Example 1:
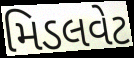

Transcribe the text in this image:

મિડલવેટ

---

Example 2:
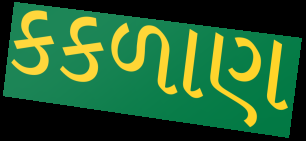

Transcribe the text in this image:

કકળાણ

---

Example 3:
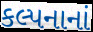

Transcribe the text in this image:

કલ્પનાનાં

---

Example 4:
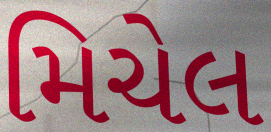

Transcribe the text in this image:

મિચેલ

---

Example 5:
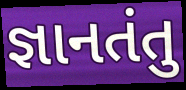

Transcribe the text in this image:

જ્ઞાનતંતુ